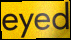
eyed